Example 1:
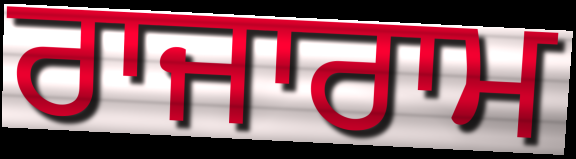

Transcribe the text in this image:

ਰਾਜਾਰਾਮ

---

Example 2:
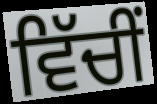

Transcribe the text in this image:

ਵਿੱਚੀਂ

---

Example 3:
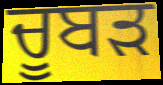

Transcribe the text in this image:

ਚੂਬੜ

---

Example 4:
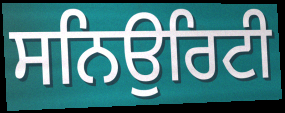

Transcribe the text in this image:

ਸਨਿਉਰਿਟੀ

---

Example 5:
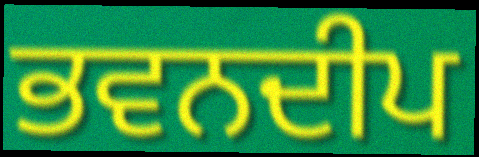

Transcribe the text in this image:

ਭਵਨਦੀਪ